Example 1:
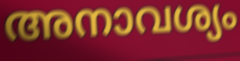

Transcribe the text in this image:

അനാവശ്യം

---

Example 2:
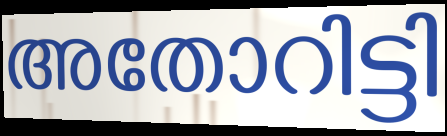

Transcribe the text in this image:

അതോറിട്ടി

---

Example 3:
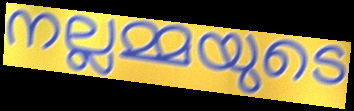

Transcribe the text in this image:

നല്ലമ്മയുടെ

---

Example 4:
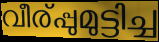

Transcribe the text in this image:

വീര്പ്പുമുട്ടിച്ച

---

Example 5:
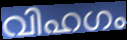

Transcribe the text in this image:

വിഹഗം